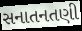
સનાતનતણી